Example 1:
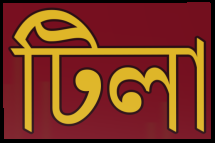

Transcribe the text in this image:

টিলা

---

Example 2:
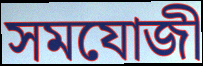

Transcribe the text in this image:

সমযোজী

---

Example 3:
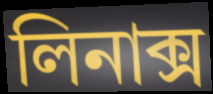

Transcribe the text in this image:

লিনাক্স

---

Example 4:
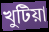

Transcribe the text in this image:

খুটিয়া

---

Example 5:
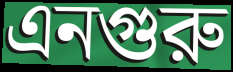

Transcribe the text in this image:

এনগুরু